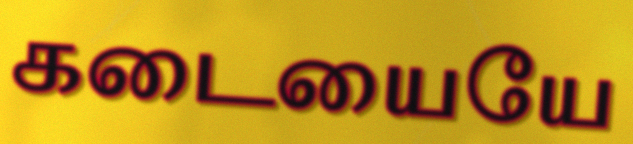
கடையையே